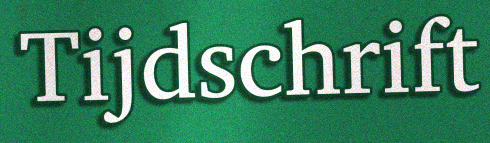
Tijdschrift